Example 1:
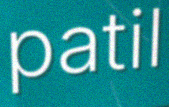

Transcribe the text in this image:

patil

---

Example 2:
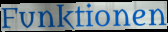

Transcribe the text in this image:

Funktionen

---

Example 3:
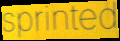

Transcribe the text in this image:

sprinted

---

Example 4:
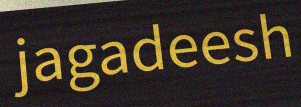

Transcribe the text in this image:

jagadeesh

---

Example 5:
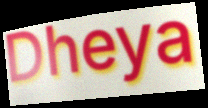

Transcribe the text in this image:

Dheya